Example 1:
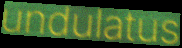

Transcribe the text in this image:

undulatus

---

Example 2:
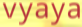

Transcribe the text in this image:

vyaya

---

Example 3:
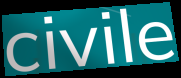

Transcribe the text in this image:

civile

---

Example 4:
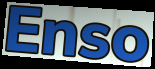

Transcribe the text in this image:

Enso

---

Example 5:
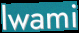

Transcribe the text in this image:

lwami